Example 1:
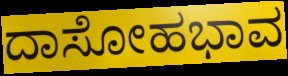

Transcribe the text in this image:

ದಾಸೋಹಭಾವ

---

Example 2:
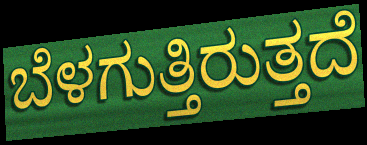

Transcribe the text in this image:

ಬೆಳಗುತ್ತಿರುತ್ತದೆ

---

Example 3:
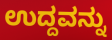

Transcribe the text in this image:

ಉದ್ದವನ್ನು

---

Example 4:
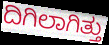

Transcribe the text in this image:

ದಿಗಿಲಾಗಿತ್ತು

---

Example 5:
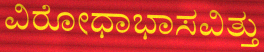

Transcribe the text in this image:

ವಿರೋಧಾಭಾಸವಿತ್ತು